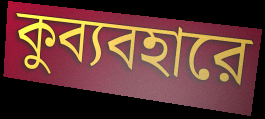
কুব্যবহারে